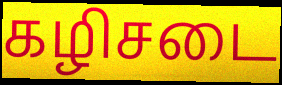
கழிசடை